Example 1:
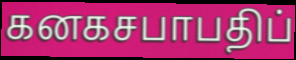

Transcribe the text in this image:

கனகசபாபதிப்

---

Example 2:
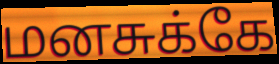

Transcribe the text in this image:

மனசுக்கே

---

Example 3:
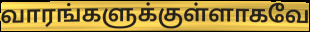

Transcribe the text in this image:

வாரங்களுக்குள்ளாகவே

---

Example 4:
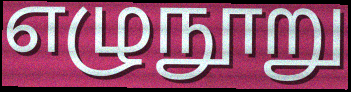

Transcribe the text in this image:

எழுநூறு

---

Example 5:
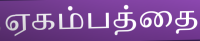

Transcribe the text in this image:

ஏகம்பத்தை